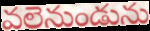
వలెనుండును